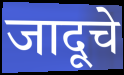
जादूचे